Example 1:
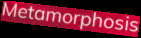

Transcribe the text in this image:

Metamorphosis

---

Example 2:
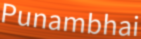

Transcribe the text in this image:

Punambhai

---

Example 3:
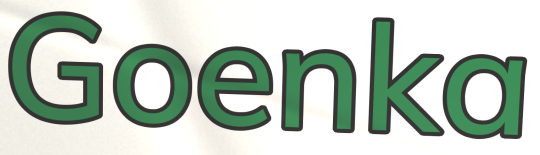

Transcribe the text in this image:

Goenka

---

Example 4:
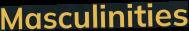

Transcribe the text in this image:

Masculinities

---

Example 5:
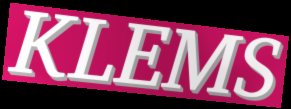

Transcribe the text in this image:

KLEMS